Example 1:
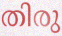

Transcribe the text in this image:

തിരു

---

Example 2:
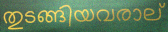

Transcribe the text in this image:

തുടങ്ങിയവരാല്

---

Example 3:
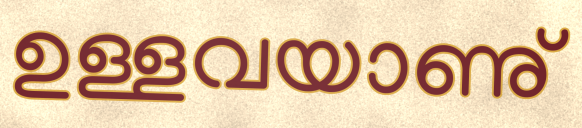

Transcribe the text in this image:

ഉള്ളവയാണു്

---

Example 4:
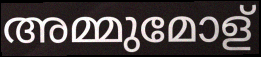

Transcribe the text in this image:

അമ്മുമോള്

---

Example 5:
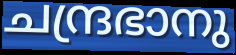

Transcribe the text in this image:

ചന്ദ്രഭാനു